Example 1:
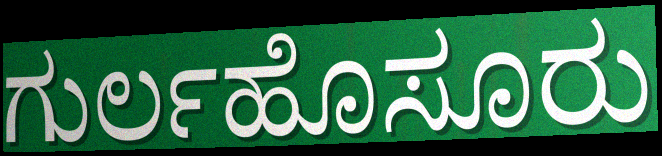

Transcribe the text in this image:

ಗುರ್ಲಹೊಸೂರು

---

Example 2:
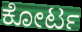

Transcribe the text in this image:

ಕೋರ್ಟ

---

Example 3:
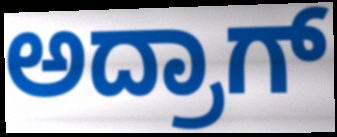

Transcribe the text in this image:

ಅದ್ರಾಗ್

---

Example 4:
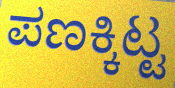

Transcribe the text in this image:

ಪಣಕ್ಕಿಟ್ಟ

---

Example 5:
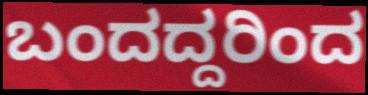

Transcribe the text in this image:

ಬಂದದ್ದರಿಂದ